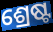
ଶ୍ରେଷ୍ଟ